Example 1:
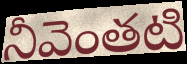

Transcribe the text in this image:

నీవెంతటి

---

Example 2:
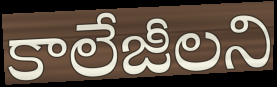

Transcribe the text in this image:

కాలేజీలని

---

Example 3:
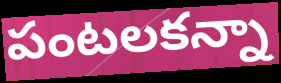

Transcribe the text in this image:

పంటలకన్నా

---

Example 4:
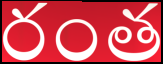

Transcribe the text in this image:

రంత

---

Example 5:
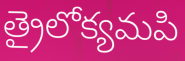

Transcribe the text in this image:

త్రైలోక్యమపి